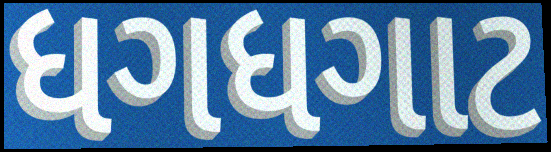
ધગધગાટ